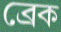
ব্রেক